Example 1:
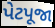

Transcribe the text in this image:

પેટપૂજા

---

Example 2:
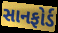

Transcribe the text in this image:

સાનફોર્ડ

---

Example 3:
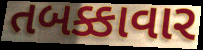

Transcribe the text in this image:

તબક્કાવાર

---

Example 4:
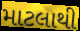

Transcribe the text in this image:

માટલાથી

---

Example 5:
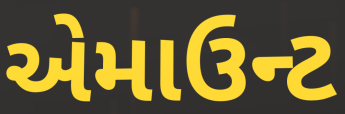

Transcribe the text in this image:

એમાઉન્ટ